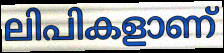
ലിപികളാണ്